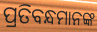
ପ୍ରତିବନ୍ଧମାନଙ୍କ